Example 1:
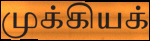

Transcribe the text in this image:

முக்கியக்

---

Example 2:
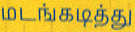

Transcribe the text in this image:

மடங்கடித்து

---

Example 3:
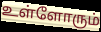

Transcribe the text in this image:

உள்ளோரும்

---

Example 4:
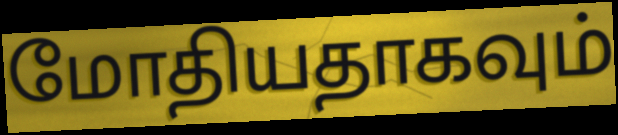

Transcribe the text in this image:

மோதியதாகவும்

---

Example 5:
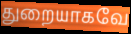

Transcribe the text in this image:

துறையாகவே